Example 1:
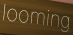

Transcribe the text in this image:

looming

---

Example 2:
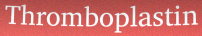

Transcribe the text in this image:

Thromboplastin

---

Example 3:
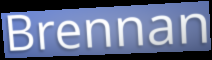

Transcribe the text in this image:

Brennan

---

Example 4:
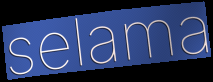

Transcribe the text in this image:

selama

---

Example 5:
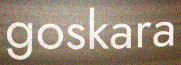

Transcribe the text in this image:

goskara